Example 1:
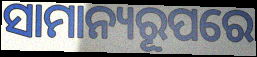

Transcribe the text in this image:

ସାମାନ୍ୟରୂପରେ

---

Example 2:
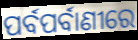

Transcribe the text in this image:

ପର୍ବପର୍ବାଣୀରେ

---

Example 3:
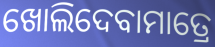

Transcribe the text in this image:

ଖୋଲିଦେବାମାତ୍ରେ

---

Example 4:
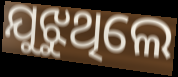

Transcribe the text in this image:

ଯୁଝୁଥିଲେ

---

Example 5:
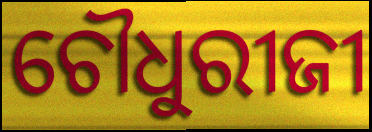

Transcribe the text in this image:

ଚୌଧୁରୀଜୀ